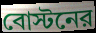
বোস্টনের